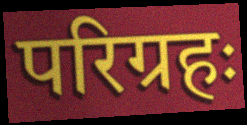
परिग्रहः